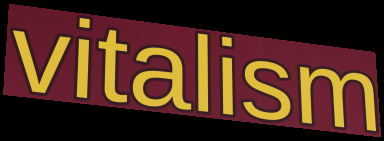
vitalism